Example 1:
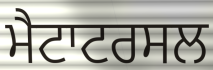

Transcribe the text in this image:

ਮੈਟਾਟਰਸਲ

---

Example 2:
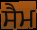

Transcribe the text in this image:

ਸੈਮ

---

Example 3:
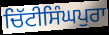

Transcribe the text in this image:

ਚਿੱਟੀਸਿੰਘਪੁਰਾ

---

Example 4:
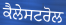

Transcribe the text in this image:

ਕੈਲੇਸਟਰੋਲ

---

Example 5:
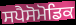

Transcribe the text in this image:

ਸਪੈਸੋਮੋਡਿਕ